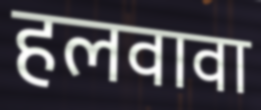
हलवावा